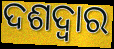
ଦଶଦ୍ୱାର